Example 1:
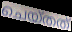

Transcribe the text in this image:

ചെയ്തത്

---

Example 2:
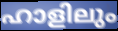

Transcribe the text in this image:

ഹാളിലും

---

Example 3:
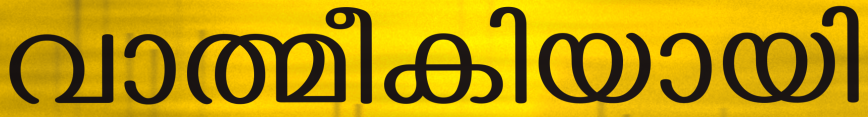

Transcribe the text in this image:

വാത്മീകിയായി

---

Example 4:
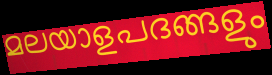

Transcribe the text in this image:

മലയാളപദങ്ങളും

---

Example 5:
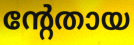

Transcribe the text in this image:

ന്റേതായ